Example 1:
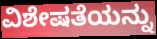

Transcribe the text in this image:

ವಿಶೇಷತೆಯನ್ನು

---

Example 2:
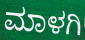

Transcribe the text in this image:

ಮಾಳಗಿ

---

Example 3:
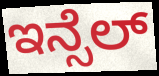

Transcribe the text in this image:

ಇನ್ಸೆಲ್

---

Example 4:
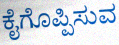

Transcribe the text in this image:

ಕೈಗೊಪ್ಪಿಸುವ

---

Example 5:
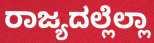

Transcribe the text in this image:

ರಾಜ್ಯದಲ್ಲೆಲ್ಲಾ